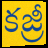
కజ్రీ